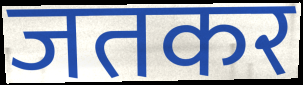
जतकर